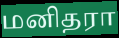
மனிதரா